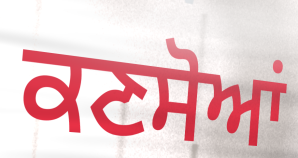
ਕਣਸੋਆਂ